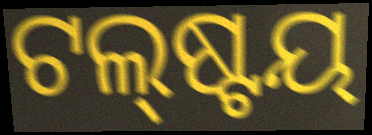
ଟଲ୍ଷ୍ଟୟ